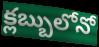
క్లబ్బులోనో